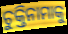
ଚୁକ୍ତିନାମାକୁ